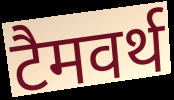
टैमवर्थ